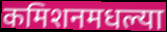
कमिशनमधल्या